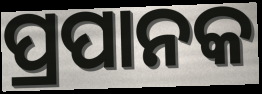
ପ୍ରପାନକ